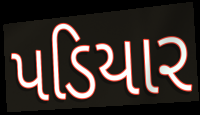
પડિયાર